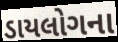
ડાયલોગના